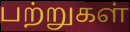
பற்றுகள்